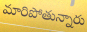
మారిపోతున్నారు